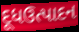
દૂધઉત્પાદન